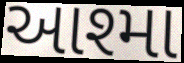
આશ્મા